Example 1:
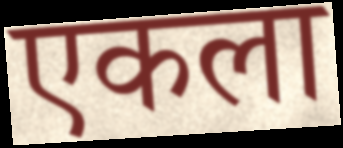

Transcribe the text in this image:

एकला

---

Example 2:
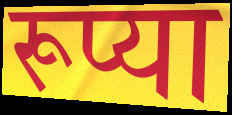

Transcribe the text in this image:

रूप्या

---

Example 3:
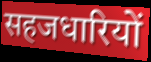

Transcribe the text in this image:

सहजधारियों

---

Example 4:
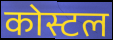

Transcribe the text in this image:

कोस्टल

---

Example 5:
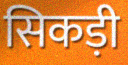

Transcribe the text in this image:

सिकड़ी